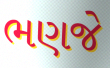
ભણજે